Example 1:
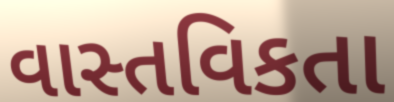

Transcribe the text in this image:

વાસ્તવિકતા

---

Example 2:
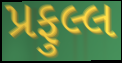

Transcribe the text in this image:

પ્રફુલ્લ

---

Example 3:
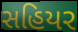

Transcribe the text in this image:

સહિયર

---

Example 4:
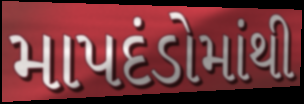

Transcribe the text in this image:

માપદંડોમાંથી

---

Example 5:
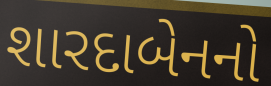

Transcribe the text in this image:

શારદાબેનનો